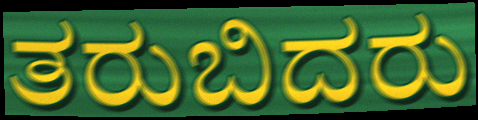
ತರುಬಿದರು